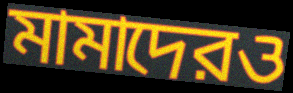
মামাদেরও